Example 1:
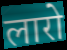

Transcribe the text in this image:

लारो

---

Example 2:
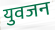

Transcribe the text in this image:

युवजन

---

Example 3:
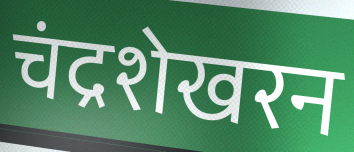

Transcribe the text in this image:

चंद्रशेखरन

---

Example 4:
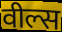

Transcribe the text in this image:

वील्स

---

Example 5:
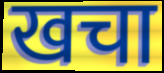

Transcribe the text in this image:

खचा